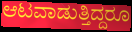
ಆಟವಾಡುತ್ತಿದ್ದರೂ